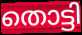
തൊട്ടി